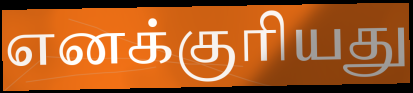
எனக்குரியது